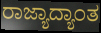
ರಾಜ್ಯಾದ್ಯಾಂತ